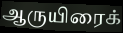
ஆருயிரைக்